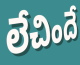
లేచిందే